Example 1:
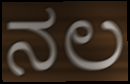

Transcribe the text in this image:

ನಲ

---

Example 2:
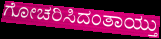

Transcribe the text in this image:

ಗೋಚರಿಸಿದಂತಾಯ್ತು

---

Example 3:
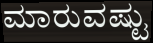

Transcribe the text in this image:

ಮಾರುವಷ್ಟು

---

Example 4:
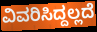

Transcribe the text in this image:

ವಿವರಿಸಿದ್ದಲ್ಲದೆ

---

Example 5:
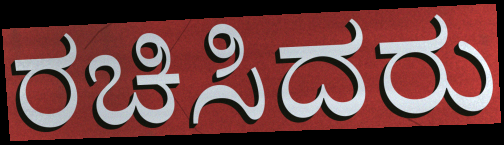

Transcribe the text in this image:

ರಚಿಸಿದರು